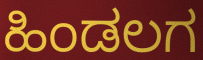
ಹಿಂಡಲಗ